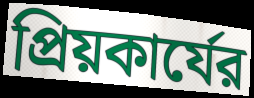
প্রিয়কার্যের